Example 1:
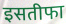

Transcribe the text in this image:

इसतीफा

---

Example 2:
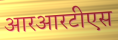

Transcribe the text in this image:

आरआरटीएस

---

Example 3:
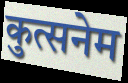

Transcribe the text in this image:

कुत्सनेम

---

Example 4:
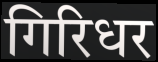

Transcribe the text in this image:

गिरिधर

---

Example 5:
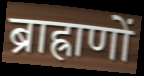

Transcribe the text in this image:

ब्राह्राणों